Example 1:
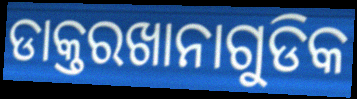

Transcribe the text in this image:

ଡାକ୍ତରଖାନାଗୁଡିକ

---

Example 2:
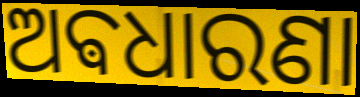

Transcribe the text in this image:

ଅଵଧାରଣା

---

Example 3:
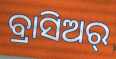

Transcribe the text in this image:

ବ୍ରାସିଅର୍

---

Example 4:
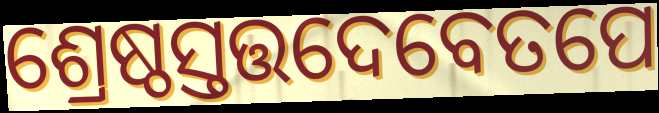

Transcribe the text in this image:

ଶ୍ରେଷ୍ଠସ୍ତତ୍ତଦେବେତପେ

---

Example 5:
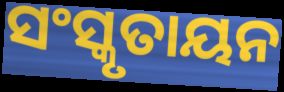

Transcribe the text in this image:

ସଂସ୍କୃତାୟନ